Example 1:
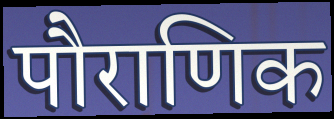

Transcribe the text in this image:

पौराणिक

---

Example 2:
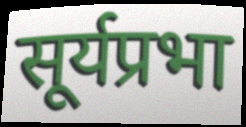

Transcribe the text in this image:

सूर्यप्रभा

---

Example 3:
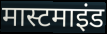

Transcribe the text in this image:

मास्टमाइंड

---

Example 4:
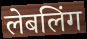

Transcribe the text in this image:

लेबलिंग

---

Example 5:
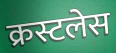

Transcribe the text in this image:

क्रस्टलेस